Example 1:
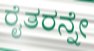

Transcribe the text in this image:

ರೈತರನ್ನೇ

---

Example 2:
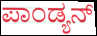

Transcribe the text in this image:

ಪಾಂಡ್ಯನ್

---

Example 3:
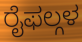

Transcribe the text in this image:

ರೈಫಲ್ಗಳ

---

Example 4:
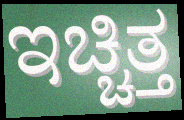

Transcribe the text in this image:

ಇಚ್ಚಿತ್ತ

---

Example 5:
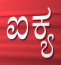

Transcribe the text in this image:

ಐಕ್ಯ